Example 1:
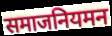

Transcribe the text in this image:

समाजनियमन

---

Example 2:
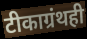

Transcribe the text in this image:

टीकाग्रंथही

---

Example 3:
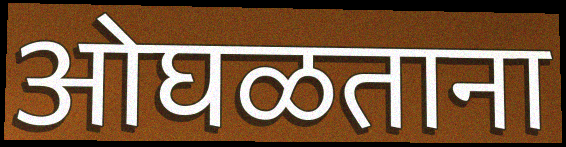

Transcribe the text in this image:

ओघळताना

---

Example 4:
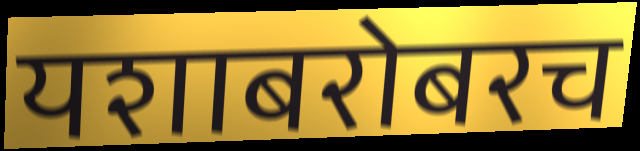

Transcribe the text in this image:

यशाबरोबरच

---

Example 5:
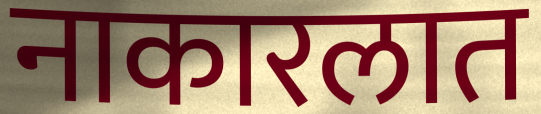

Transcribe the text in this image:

नाकारलात